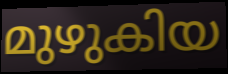
മുഴുകിയ